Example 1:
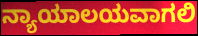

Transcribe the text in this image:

ನ್ಯಾಯಾಲಯವಾಗಲಿ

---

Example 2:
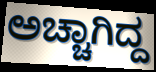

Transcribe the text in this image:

ಅಚ್ಚಾಗಿದ್ದ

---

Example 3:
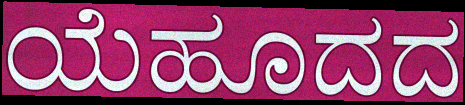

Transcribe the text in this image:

ಯೆಹೂದದ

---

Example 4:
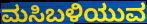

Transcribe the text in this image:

ಮಸಿಬಳಿಯುವ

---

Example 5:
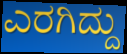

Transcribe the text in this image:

ಎರಗಿದ್ದು